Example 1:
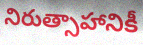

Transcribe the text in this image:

నిరుత్సాహానికీ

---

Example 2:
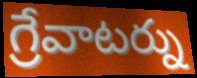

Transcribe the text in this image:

గ్రేవాటర్ను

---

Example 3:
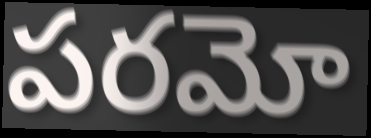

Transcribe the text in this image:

పరమో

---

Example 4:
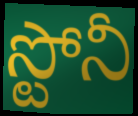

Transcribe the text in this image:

స్టోనీ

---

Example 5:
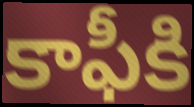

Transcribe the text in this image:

కాఫీకి